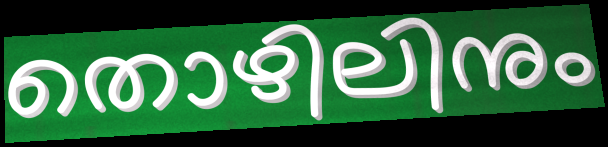
തൊഴിലിനും